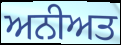
ਅਨੀਅਤ